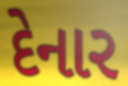
દેનાર